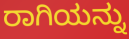
ರಾಗಿಯನ್ನು